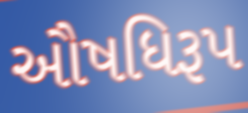
ઔષધિરૂપ